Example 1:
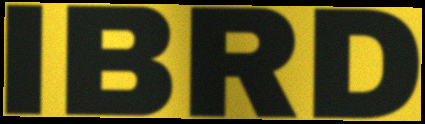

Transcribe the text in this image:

IBRD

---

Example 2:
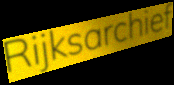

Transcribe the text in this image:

Rijksarchief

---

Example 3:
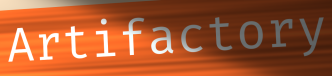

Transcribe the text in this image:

Artifactory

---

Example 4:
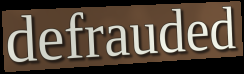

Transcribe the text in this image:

defrauded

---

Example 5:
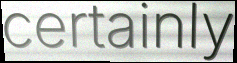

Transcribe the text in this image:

certainly